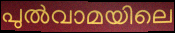
പുൽവാമയിലെ